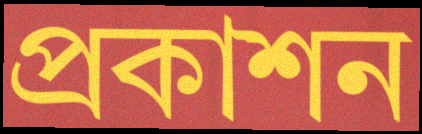
প্ৰকাশন